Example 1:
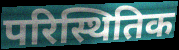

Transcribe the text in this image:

परिस्थितिक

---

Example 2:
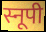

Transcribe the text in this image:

स्नूपी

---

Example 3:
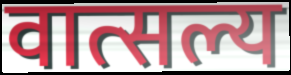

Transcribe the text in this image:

वात्सल्य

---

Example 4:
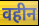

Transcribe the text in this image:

वहीन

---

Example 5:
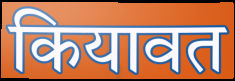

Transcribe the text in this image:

कियावत